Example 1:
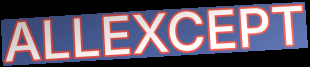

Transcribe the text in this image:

ALLEXCEPT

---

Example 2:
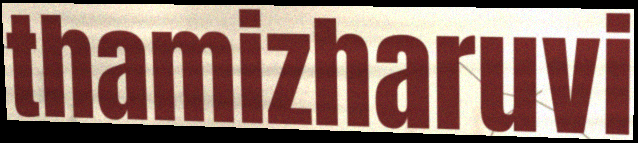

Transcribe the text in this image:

thamizharuvi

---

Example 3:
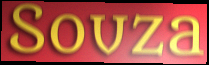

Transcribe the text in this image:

Souza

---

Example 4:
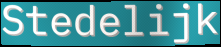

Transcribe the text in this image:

Stedelijk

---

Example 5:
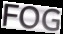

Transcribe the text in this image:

FOG